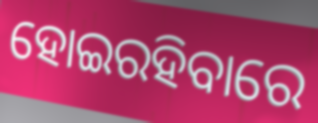
ହୋଇରହିବାରେ